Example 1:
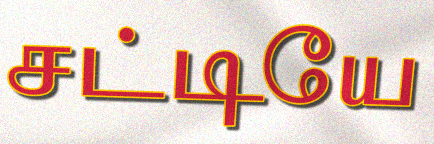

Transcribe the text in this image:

சட்டியே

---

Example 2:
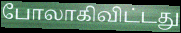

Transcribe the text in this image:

போலாகிவிட்டது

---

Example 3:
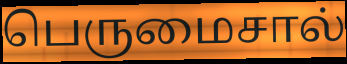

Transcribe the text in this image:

பெருமைசால்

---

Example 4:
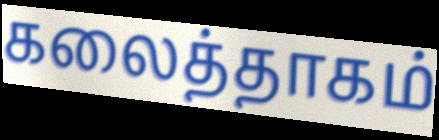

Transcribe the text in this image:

கலைத்தாகம்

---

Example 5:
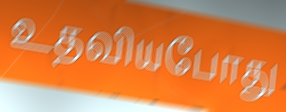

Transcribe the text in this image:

உதவியபோது